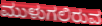
ಮುಳುಗಲಿರುವ